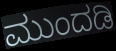
ಮುಂದಡಿ